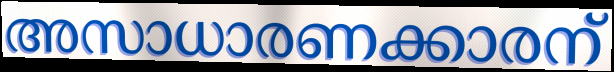
അസാധാരണക്കാരന്